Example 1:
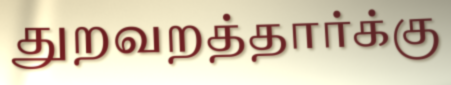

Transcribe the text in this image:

துறவறத்தார்க்கு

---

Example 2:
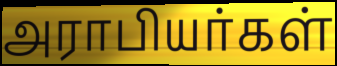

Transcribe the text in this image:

அராபியர்கள்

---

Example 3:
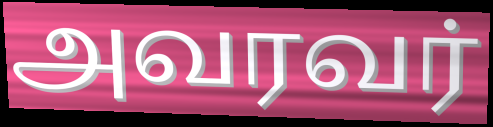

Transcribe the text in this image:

அவரவர்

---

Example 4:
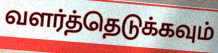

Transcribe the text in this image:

வளர்த்தெடுக்கவும்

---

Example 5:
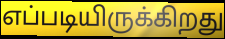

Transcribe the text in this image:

எப்படியிருக்கிறது